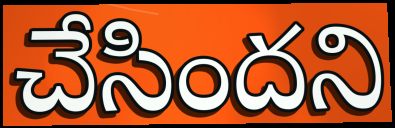
చేసిందని